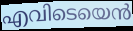
എവിടെയെൻ